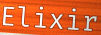
Elixir